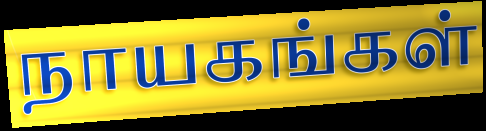
நாயகங்கள்